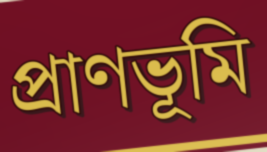
প্রাণভূমি